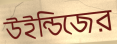
উইন্ডিজের